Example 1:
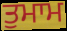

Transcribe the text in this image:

ਤੁਮਾਮ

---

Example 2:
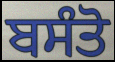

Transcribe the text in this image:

ਬਸੰਤੋ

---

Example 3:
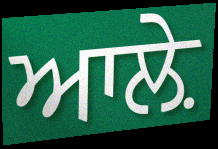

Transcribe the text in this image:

ਆਲ਼ੇ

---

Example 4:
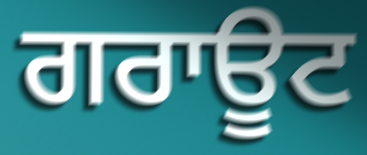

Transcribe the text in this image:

ਗਰਾਊਟ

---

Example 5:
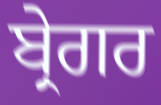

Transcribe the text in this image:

ਬ੍ਰੇਗਰ